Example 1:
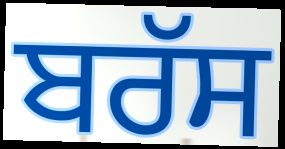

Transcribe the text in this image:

ਬਰੱਸ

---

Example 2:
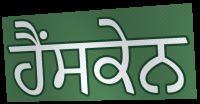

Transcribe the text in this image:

ਹੈਂਸਕੇਨ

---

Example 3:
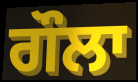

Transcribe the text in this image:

ਗੌਲਾ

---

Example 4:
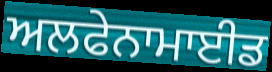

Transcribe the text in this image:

ਅਲਫੇਨਾਮਾਈਡ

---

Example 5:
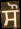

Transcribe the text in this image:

ਸੌ